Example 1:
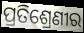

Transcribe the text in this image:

ପ୍ରତିଶ୍ରେଣୀର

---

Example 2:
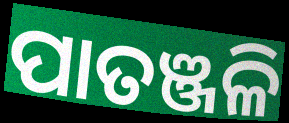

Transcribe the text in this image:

ପାତଞ୍ଜଳି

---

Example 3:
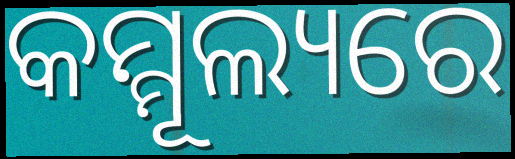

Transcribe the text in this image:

କମ୍ମୂଲ୍ୟରେ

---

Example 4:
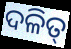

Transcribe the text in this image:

ଦଳିତ୍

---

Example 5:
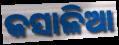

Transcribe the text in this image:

କସାଳିଆ